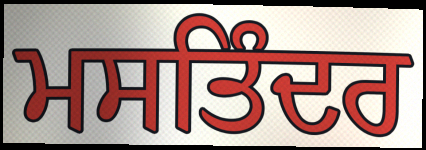
ਮਸਤਿੰਦਰ